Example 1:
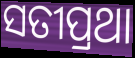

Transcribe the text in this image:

ସତୀପ୍ରଥା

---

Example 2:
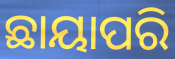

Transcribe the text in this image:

ଛାୟାପରି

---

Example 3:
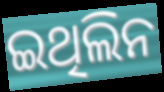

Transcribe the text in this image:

ଇଥିଲିନ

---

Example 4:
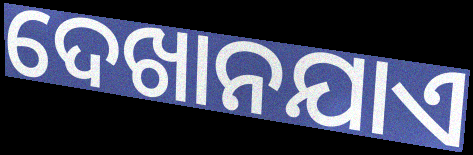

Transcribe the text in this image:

ଦେଖାନଯାଏ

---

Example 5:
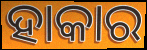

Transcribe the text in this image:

ହାକାର